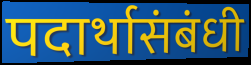
पदार्थासंबंधी